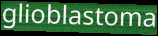
glioblastoma